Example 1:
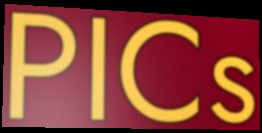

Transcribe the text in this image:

PICs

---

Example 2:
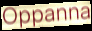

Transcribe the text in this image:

Oppanna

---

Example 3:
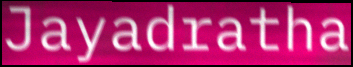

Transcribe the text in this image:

Jayadratha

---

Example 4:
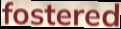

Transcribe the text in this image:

fostered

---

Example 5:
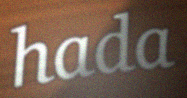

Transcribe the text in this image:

hada